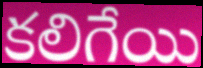
కలిగేయి